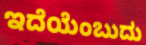
ಇದೆಯೆಂಬುದು